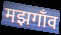
मझगाँव